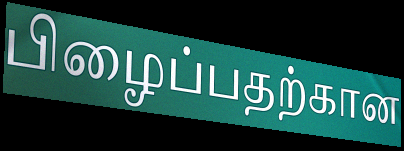
பிழைப்பதற்கான